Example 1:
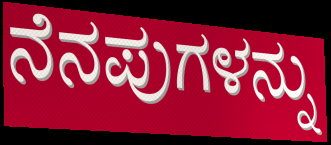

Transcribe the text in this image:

ನೆನಪುಗಳನ್ನು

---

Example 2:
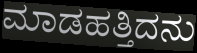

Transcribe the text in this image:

ಮಾಡಹತ್ತಿದನು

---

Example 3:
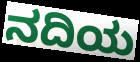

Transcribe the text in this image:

ನದಿಯ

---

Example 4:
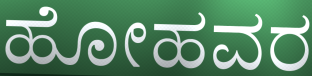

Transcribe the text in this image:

ಹೋಹವರ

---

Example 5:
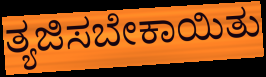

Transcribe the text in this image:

ತ್ಯಜಿಸಬೇಕಾಯಿತು